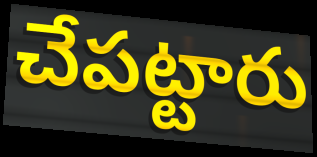
చేపట్టారు